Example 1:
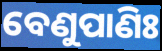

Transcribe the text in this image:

ବେଣୁପାଣିଃ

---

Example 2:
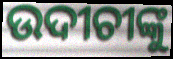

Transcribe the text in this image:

ଉଦୀଚୀଙ୍କୁ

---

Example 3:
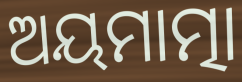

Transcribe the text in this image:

ଅୟମାତ୍ମା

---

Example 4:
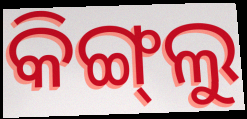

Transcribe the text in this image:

କିଙ୍ଗ୍‌ଲୁ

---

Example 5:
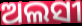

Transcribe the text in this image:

ଅଲସୀ